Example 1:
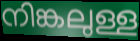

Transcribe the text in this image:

നിങ്കലുള്ള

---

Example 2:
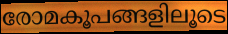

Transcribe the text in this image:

രോമകൂപങ്ങളിലൂടെ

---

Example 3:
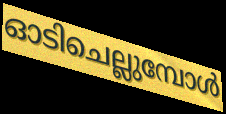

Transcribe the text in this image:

ഓടിചെല്ലുമ്പോൾ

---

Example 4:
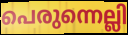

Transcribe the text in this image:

പെരുന്നെല്ലി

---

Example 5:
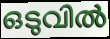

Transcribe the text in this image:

ഒടുവിൽ